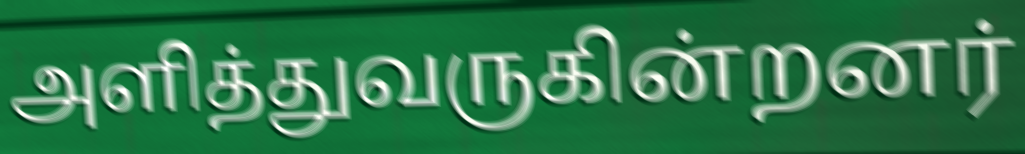
அளித்துவருகின்றனர்